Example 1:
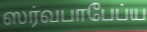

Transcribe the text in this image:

ஸர்வபாபேப்ய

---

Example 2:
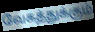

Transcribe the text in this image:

வேகத்துக்கும்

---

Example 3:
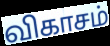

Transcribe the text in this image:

விகாசம்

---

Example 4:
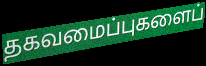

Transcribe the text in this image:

தகவமைப்புகளைப்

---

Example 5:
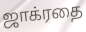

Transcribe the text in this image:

ஜாக்ரதை